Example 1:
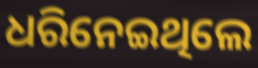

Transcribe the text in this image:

ଧରିନେଇଥିଲେ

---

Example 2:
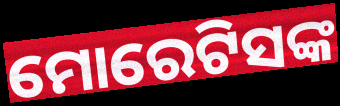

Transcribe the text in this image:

ମୋରେଟିସଙ୍କ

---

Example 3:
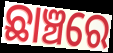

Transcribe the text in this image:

ଛାଞ୍ଚରେ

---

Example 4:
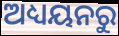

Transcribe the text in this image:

ଅଧ୍ୟୟନରୁ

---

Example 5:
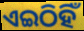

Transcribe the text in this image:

ଏଇଠିହିଁ